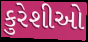
કુરેશીઓ